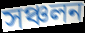
সঞ্চলন